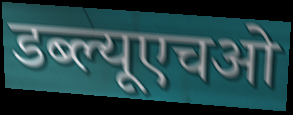
डब्ल्यूएचओ